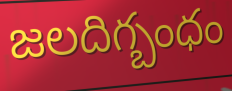
జలదిగ్బంధం